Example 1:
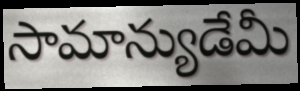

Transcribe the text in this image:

సామాన్యుడేమీ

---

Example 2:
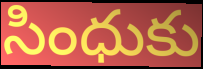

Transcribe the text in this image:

సింధుకు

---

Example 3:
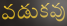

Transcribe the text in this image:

వడుకవు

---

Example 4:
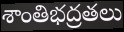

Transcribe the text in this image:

శాంతిభద్రతలు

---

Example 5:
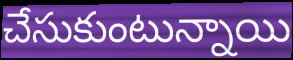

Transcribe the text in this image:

చేసుకుంటున్నాయి